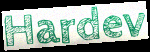
Hardev